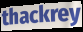
thackrey